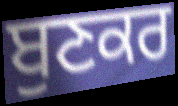
ਬੁਣਕਰ